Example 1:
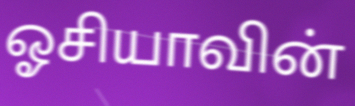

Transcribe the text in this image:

ஓசியாவின்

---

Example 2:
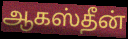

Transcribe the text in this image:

ஆகஸ்தீன்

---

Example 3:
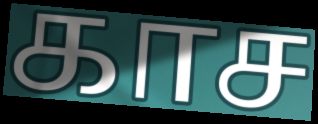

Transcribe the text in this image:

காச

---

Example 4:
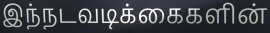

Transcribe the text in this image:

இந்நடவடிக்கைகளின்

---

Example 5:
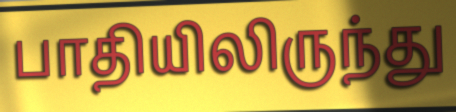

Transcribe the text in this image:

பாதியிலிருந்து